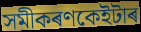
সমীকৰণকেইটাৰ